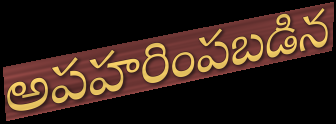
అపహరింపబడిన